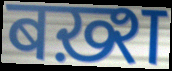
बख़्श